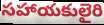
సహాయకులైరి